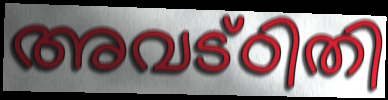
അവട്ഠിതി